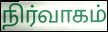
நிர்வாகம்